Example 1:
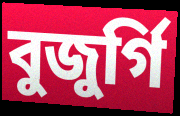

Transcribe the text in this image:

বুজুর্গি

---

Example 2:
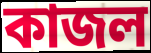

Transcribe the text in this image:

কাজল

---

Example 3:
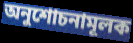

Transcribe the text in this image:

অনুশোচনামূলক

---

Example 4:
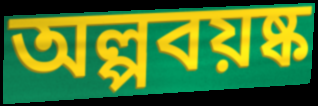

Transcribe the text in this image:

অল্পবয়ষ্ক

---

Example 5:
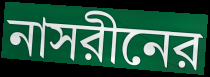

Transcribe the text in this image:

নাসরীনের